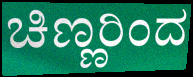
ಚಿಣ್ಣರಿಂದ